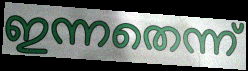
ഇന്നതെന്ന്